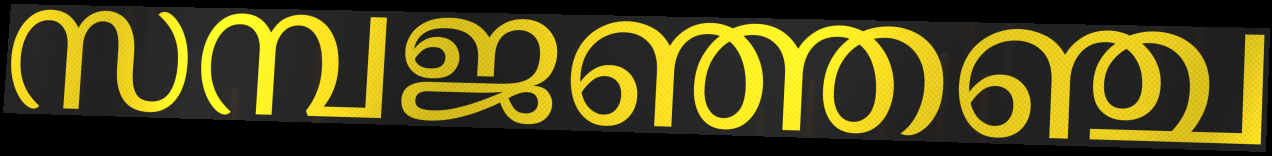
സമ്പജഞ്ഞഞ്ച